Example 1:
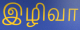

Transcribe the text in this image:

இழிவா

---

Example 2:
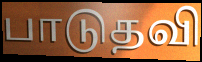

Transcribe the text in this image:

பாடுதவி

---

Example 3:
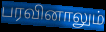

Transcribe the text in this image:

பரவினாலும்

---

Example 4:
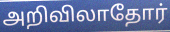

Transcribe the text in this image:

அறிவிலாதோர்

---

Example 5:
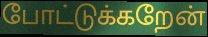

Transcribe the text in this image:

போட்டுக்கறேன்